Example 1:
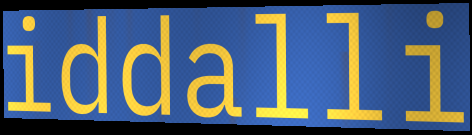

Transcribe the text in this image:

iddalli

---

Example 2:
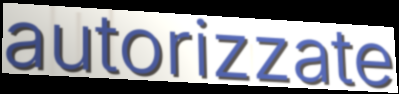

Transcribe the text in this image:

autorizzate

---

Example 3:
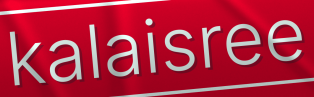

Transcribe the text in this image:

kalaisree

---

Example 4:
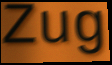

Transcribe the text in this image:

Zug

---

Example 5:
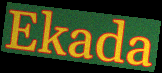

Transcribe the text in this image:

Ekada